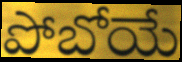
పోబోయే